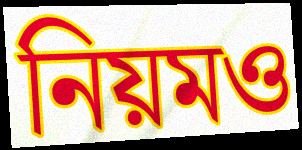
নিয়মও